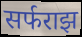
सर्फराझ